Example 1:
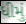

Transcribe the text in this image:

ધીમું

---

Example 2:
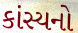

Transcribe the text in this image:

કાંસ્યનો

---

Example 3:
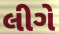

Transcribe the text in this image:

લીગે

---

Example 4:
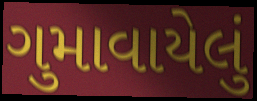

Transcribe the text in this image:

ગુમાવાયેલું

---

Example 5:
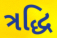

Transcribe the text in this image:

ત્રદ્ધિ